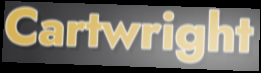
Cartwright